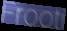
Frooti